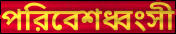
পরিবেশধ্বংসী